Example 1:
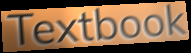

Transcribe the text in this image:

Textbook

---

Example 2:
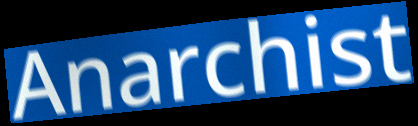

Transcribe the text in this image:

Anarchist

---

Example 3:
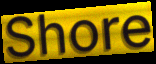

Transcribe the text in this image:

Shore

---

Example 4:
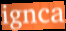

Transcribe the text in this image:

ignca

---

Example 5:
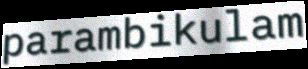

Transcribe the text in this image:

parambikulam